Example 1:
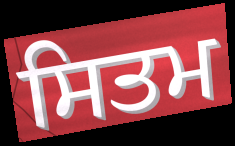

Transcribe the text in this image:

ਸਿਤਮ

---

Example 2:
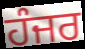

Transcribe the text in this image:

ਹੰਜਰ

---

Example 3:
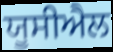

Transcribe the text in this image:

ਯੂਸੀਐਲ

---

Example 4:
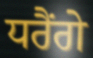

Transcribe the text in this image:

ਧਰੈਂਗੇ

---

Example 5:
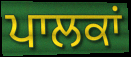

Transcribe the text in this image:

ਪਾਲਕਾਂ